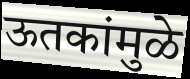
ऊतकांमुळे